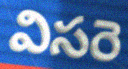
విసరె